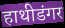
हाथीडंगर